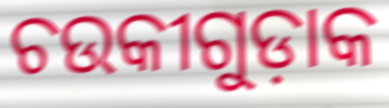
ଚଉକୀଗୁଡ଼ାକ